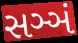
સઞ્ઞં